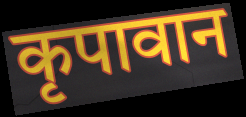
कृपावान